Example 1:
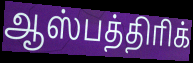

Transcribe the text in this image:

ஆஸ்பத்திரிக்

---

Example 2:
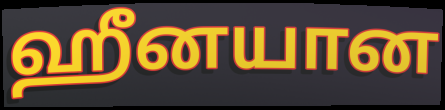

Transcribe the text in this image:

ஹீனயான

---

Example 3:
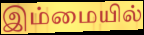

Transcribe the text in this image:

இம்மையில்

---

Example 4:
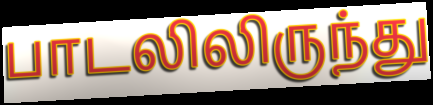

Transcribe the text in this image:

பாடலிலிருந்து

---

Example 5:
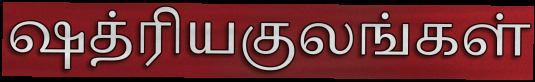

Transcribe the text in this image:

ஷத்ரியகுலங்கள்